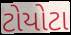
ટોયોટા